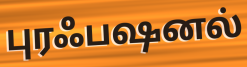
புரஃபஷனல்